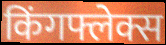
किंगफ्लेक्स